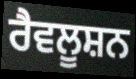
ਰੈਵਲੂਸ਼ਨ